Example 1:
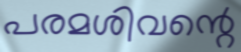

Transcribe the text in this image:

പരമശിവന്റെ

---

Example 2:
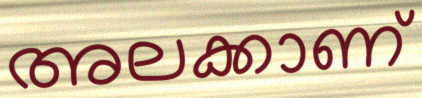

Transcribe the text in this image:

അലക്കാണ്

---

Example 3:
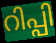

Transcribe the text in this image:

റിപ്പി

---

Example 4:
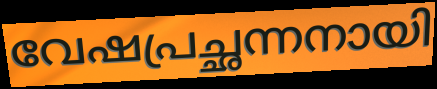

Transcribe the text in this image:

വേഷപ്രച്ഛന്നനായി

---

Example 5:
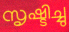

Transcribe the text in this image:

സൃഷ്ടിച്ചു